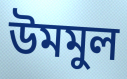
উমমুল